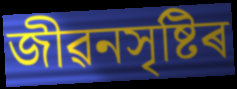
জীৱনসৃষ্টিৰ